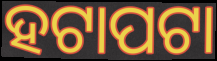
ହଟାପଟା